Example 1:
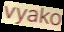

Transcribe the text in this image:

vyako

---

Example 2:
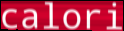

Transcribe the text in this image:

calori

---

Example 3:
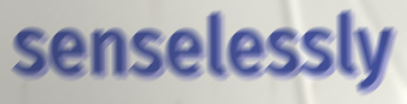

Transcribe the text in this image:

senselessly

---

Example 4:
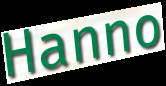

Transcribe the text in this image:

Hanno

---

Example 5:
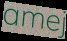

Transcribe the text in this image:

amej